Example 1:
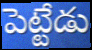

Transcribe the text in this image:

పెట్టేడు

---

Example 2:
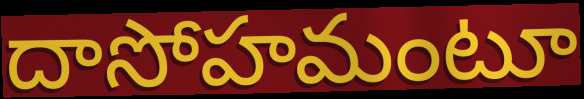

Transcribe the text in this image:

దాసోహమంటూ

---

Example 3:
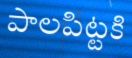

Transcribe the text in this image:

పాలపిట్టకి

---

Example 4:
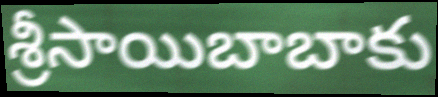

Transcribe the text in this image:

శ్రీసాయిబాబాకు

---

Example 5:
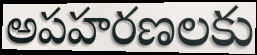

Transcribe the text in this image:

అపహరణలకు